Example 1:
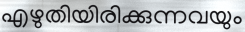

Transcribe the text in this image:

എഴുതിയിരിക്കുന്നവയും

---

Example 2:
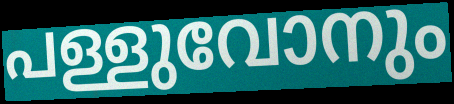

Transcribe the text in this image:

പള്ളുവോനും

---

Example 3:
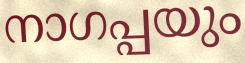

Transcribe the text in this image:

നാഗപ്പയും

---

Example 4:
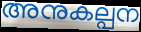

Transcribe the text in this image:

അനുകല്പന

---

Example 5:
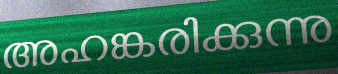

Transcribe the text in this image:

അഹങ്കരിക്കുന്നു